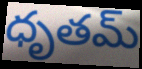
ధృతమ్